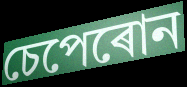
চেপেৰোন